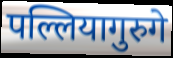
पल्लियागुरुगे